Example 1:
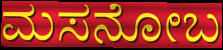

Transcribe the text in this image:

ಮಸನೋಬ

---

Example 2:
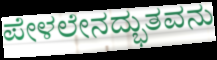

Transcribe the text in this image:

ಪೇಳಲೇನದ್ಭುತವನು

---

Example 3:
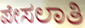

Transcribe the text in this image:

ಪೇಸಲಾತಿ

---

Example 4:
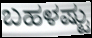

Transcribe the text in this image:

ಬಹಳಷ್ಟು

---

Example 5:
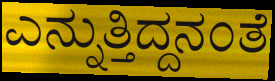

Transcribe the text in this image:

ಎನ್ನುತ್ತಿದ್ದನಂತೆ